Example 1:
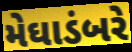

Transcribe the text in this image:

મેઘાડંબરે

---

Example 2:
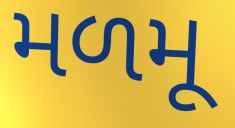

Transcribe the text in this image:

મળમૂ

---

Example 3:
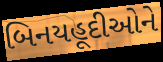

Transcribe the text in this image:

બિનયહૂદીઓને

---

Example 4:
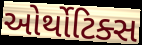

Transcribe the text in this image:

ઓર્થોટિક્સ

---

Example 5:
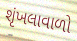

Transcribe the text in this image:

શૃંખલાવાળો